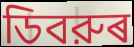
ডিবৰুৰ